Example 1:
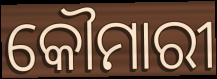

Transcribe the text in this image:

କୌମାରୀ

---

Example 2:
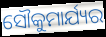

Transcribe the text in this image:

ସୌକୁମାର୍ଯ୍ୟର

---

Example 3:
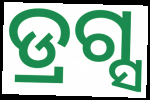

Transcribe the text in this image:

ଡ୍ରଗ୍ସ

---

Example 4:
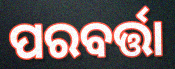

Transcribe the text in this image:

ପରବର୍ତ୍ତା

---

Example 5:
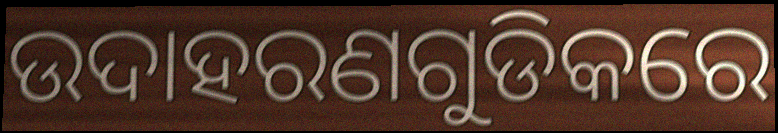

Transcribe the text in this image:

ଉଦାହରଣଗୁଡିକରେ